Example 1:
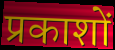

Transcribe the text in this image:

प्रकाशों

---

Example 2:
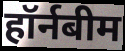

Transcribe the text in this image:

हॉर्नबीम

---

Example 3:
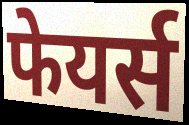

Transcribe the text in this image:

फेयर्स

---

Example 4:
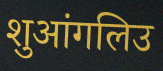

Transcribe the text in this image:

शुआंगलिउ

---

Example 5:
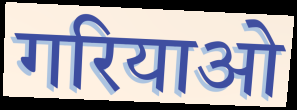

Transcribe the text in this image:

गरियाओ